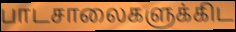
பாடசாலைகளுக்கிட